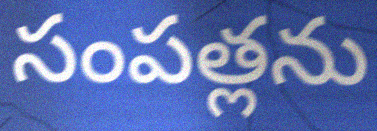
సంపత్లను